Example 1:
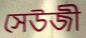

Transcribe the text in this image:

সেউজী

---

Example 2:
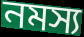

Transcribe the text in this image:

নমস্য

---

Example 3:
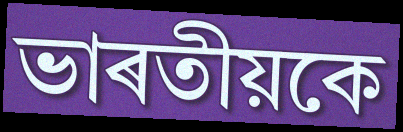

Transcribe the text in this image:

ভাৰতীয়কে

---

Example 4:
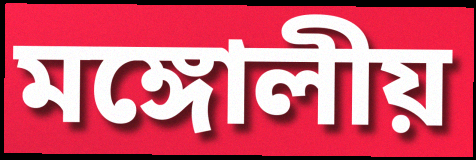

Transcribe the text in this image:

মঙ্গোলীয়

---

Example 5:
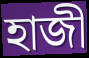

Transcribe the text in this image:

হাজী